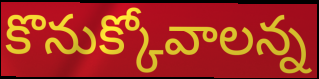
కొనుక్కోవాలన్న